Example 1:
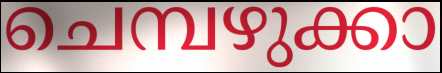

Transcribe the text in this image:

ചെമ്പഴുക്കാ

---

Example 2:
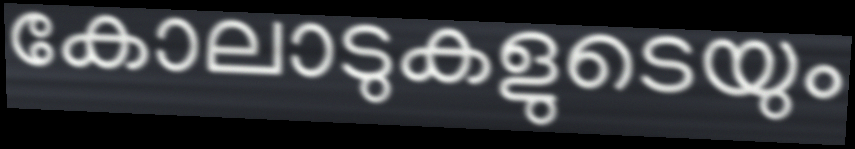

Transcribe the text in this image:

കോലാടുകളുടെയും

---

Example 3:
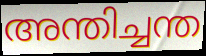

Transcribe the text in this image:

അന്തിച്ചന്ത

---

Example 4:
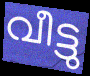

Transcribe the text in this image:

വീട്ടു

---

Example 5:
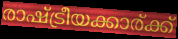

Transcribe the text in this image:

രാഷ്ട്രീയക്കാര്ക്ക്